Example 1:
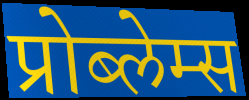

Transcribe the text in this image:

प्रोब्लेम्स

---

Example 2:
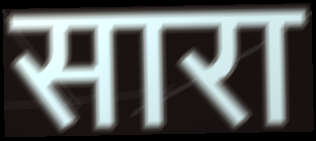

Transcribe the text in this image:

सारा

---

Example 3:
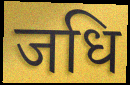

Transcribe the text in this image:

जधि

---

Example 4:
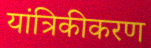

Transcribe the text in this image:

यांत्रिकीकरण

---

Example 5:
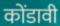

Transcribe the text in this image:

कोंडावी